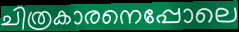
ചിത്രകാരനെപ്പോലെ